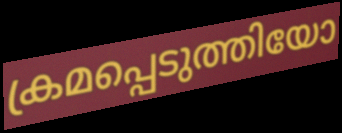
ക്രമപ്പെടുത്തിയോ